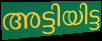
അട്ടിയിട്ട